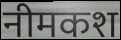
नीमकश